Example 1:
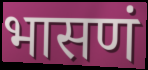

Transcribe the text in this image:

भासणं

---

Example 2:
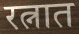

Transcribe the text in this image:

रत्नात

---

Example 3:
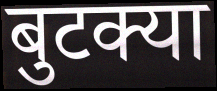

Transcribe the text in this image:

बुटक्या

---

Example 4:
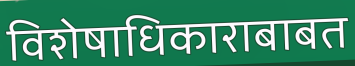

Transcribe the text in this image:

विशेषाधिकाराबाबत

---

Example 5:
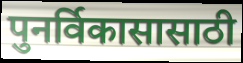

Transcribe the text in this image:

पुनर्विकासासाठी